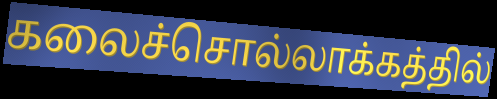
கலைச்சொல்லாக்கத்தில்